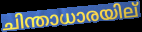
ചിന്താധാരയില്